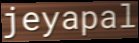
jeyapal